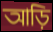
আড়ি